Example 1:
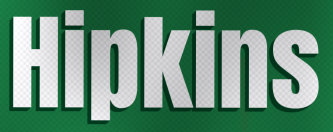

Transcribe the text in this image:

Hipkins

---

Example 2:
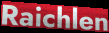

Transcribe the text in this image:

Raichlen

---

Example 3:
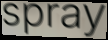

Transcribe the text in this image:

spray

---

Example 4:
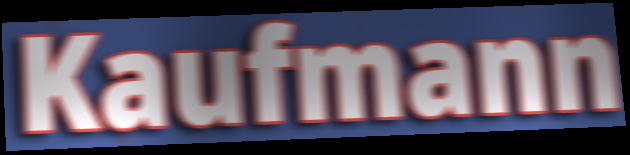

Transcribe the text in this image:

Kaufmann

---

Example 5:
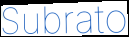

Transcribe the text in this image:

Subrato